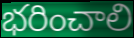
భరించాలి